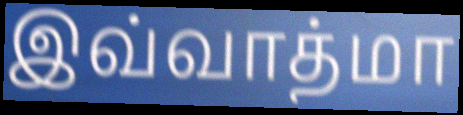
இவ்வாத்மா